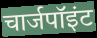
चार्जपॉइंट